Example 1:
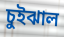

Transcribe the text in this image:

চুইঝাল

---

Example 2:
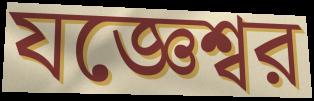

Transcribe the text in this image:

যজ্ঞেশ্বর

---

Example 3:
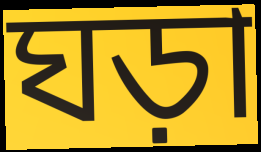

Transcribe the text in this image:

ঘড়া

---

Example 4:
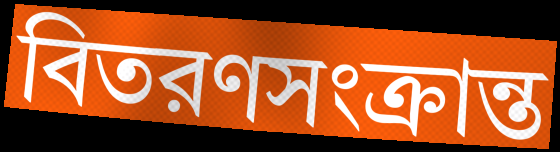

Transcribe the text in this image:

বিতরণসংক্রান্ত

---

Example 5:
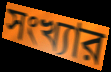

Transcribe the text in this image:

সংখ্যার